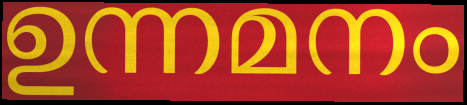
ഉന്നമനം